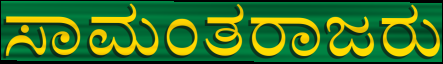
ಸಾಮಂತರಾಜರು